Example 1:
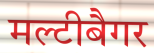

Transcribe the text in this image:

मल्‍टीबैगर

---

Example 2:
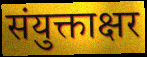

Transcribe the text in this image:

संयुक्ताक्षर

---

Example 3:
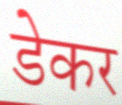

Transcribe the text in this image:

डेकर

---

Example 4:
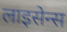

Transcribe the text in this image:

लाइसेन्स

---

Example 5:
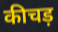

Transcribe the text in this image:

कीचड़